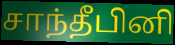
சாந்தீபினி